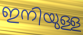
ഇനിയുള്ള